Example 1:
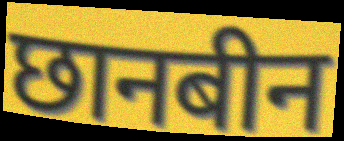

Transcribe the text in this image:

छानबीन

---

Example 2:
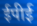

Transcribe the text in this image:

ईपीई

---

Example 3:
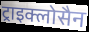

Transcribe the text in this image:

ट्राइक्लोसैन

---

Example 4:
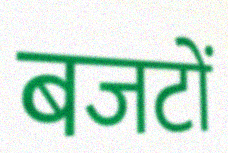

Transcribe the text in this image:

बजटों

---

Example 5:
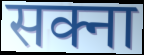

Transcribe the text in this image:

सक्ना